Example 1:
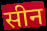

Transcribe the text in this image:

सीन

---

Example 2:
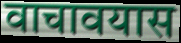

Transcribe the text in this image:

वाचावयास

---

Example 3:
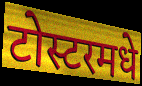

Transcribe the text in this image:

टोस्टरमधे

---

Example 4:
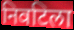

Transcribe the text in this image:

निवटिला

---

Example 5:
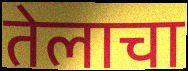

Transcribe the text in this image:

तेलाचा